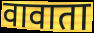
वावाता